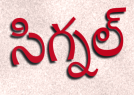
సిగ్నల్